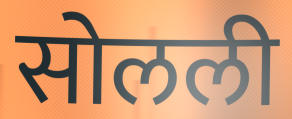
सोलली